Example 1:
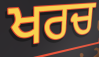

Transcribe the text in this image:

ਖਰਚ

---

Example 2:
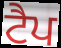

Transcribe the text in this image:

ਟੈਪ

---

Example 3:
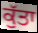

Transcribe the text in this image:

ਕੁੱਤਾ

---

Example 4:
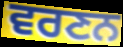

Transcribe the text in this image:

ਵਰਣਨ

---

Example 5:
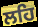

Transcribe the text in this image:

ਲਹਿ